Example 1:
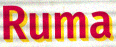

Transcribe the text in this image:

Ruma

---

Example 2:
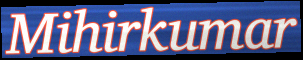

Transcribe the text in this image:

Mihirkumar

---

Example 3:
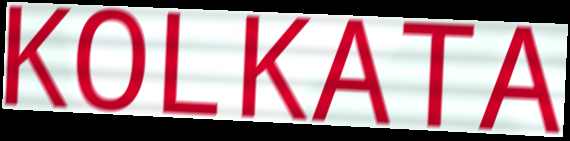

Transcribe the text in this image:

KOLKATA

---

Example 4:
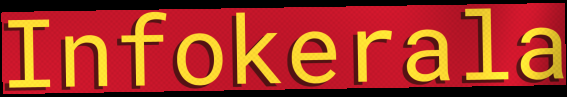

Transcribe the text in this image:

Infokerala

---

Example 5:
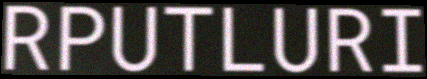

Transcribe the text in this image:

RPUTLURI